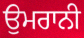
ਉਮਰਾਨੀ